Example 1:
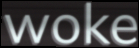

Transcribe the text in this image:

woke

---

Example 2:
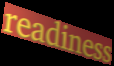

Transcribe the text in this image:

readiness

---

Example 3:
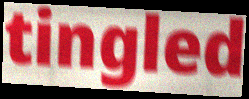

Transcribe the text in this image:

tingled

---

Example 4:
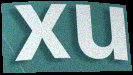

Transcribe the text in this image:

xu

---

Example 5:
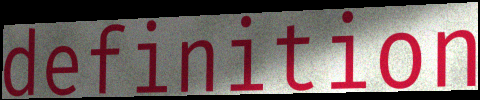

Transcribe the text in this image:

definition